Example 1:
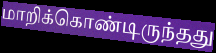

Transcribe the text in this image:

மாறிக்கொண்டிருந்தது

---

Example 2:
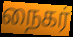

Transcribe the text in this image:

நைகர்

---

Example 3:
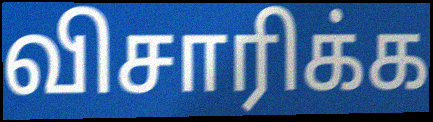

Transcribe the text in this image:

விசாரிக்க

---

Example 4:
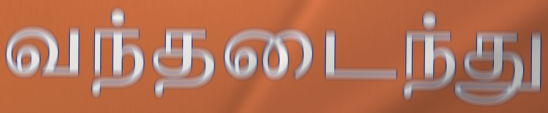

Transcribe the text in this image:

வந்தடைந்து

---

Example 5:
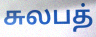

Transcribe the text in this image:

சுலபத்